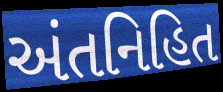
અંતનિહિત